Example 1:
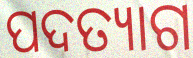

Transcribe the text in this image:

ପଦତ୍ୟାଗ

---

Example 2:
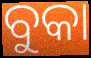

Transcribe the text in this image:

ବୁକା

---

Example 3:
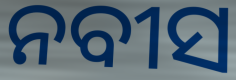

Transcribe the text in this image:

ନବୀସ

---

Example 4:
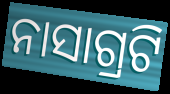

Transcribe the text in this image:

ନାସାଗ୍ରଟି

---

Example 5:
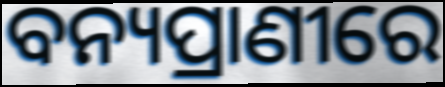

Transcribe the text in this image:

ବନ୍ୟପ୍ରାଣୀରେ